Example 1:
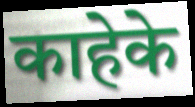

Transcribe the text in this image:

काहेके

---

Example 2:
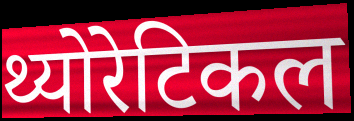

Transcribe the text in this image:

थ्योरेटिकल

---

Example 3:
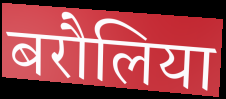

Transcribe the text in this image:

बरौलिया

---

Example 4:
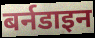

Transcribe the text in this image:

बर्नडाइन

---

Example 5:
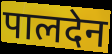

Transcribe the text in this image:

पालदेन